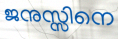
ജനുസ്സിനെ